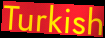
Turkish